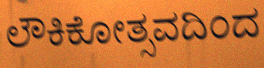
ಲೌಕಿಕೋತ್ಸವದಿಂದ